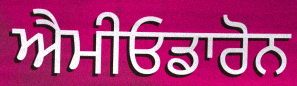
ਐਮੀਓਡਾਰੋਨ